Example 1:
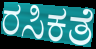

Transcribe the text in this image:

ರಸಿಕತೆ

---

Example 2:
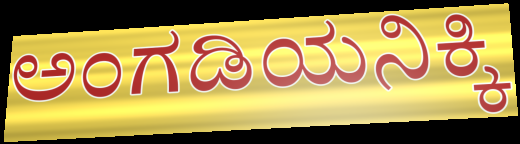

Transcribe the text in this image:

ಅಂಗಡಿಯನಿಕ್ಕಿ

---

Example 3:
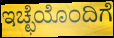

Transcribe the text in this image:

ಇಚ್ಛೆಯೊಂದಿಗೆ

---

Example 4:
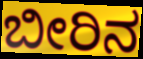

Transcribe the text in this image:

ಬೀರಿನ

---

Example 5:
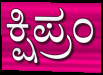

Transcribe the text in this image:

ಕ್ಷಿಪ್ರಂ